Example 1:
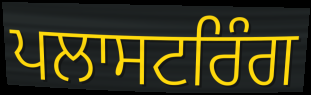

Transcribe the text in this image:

ਪਲਾਸਟਰਿੰਗ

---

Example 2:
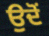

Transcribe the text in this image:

ਉਦੋੰ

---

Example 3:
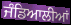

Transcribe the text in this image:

ਜੰਡਿਆਲੀਆਂ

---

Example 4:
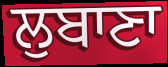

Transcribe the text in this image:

ਲੁਬਾਣਾ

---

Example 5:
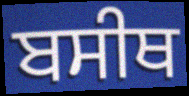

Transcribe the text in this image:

ਬਸੀਥ